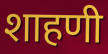
शाहणी